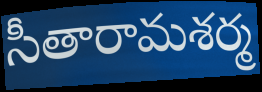
సీతారామశర్మ